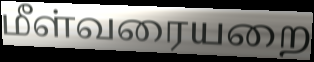
மீள்வரையறை